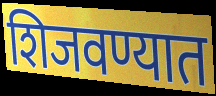
शिजवण्यात